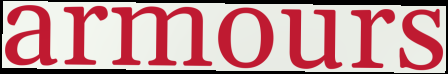
armours